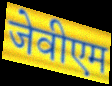
जेवीएम